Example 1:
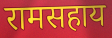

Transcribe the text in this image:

रामसहाय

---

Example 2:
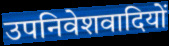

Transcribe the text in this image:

उपनिवेशवादियों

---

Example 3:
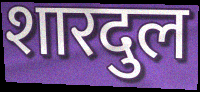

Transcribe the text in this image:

शारदुल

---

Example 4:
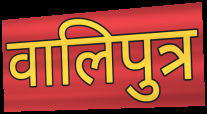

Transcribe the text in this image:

वालिपुत्र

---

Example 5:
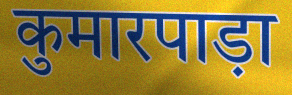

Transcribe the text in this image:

कुमारपाड़ा